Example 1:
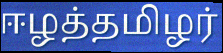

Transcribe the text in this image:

ஈழத்தமிழர்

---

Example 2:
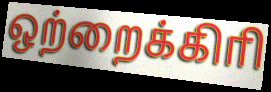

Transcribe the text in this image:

ஒற்றைக்கிரி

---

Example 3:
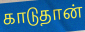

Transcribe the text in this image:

காடுதான்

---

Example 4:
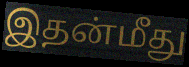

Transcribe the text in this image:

இதன்மீது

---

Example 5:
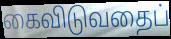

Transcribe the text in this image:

கைவிடுவதைப்